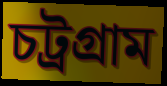
চট্রগ্রাম